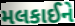
મલકાઈને